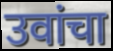
उवांचा